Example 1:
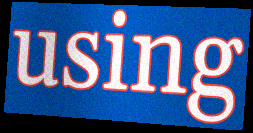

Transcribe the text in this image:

using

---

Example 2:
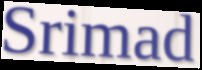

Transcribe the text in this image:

Srimad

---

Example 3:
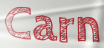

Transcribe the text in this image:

Carn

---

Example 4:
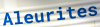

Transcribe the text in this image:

Aleurites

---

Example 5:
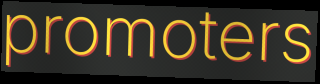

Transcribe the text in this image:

promoters